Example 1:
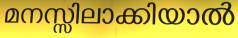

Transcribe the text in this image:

മനസ്സിലാക്കിയാൽ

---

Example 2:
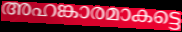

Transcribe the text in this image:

അഹങ്കാരമാകട്ടെ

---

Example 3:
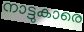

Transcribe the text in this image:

നാട്ടുകാരെ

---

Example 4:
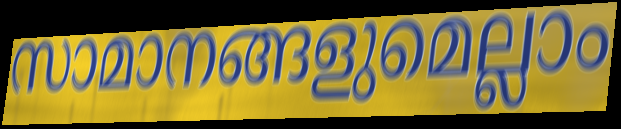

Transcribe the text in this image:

സാമാനങ്ങളുമെല്ലാം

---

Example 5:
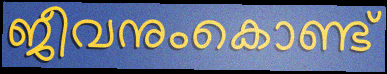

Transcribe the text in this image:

ജീവനുംകൊണ്ട്